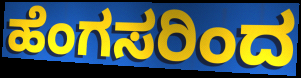
ಹೆಂಗಸರಿಂದ